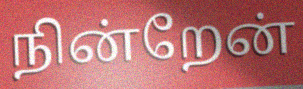
நின்றேன்